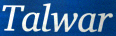
Talwar